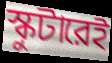
স্কুটারেই